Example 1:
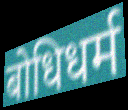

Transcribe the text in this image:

बोधिधर्म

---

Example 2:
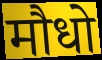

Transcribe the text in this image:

मौधो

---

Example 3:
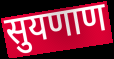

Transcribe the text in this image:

सुयणाण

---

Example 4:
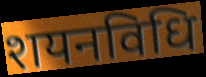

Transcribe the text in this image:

शयनविधि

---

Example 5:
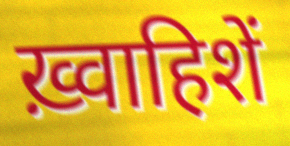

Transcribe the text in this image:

ख़्वाहिशें